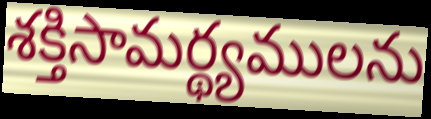
శక్తిసామర్థ్యములను